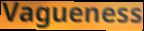
Vagueness